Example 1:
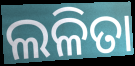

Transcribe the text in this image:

ଲଳିତା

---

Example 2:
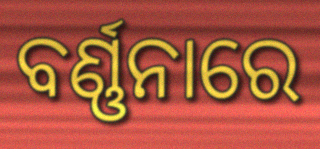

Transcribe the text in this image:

ବର୍ଣ୍ଣନାରେ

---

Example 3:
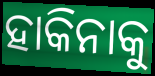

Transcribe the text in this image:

ହାକିନାକୁ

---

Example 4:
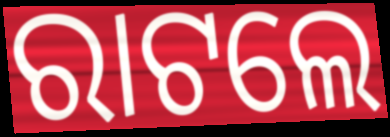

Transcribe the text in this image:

ରାଟଲେ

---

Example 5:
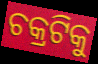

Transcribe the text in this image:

ଚକ୍ରଟିକୁ